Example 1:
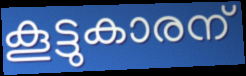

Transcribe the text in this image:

കൂട്ടുകാരന്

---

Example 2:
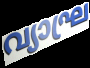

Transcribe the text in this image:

വ്യാഘ്ര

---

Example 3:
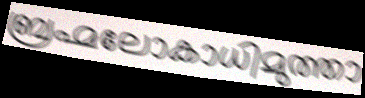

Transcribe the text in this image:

ബ്രഹ്മലോകാധിമുത്താ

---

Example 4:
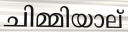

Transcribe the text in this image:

ചിമ്മിയാല്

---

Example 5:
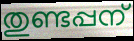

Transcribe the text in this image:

തുണ്ടപ്പന്